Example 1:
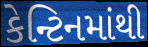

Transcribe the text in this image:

કેન્ટિનમાંથી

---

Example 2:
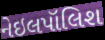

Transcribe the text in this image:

નેઇલપૉલિશ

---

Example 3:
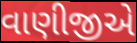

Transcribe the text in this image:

વાણીજીએ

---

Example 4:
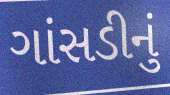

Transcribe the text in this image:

ગાંસડીનું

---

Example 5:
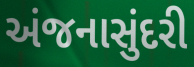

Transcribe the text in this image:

અંજનાસુંદરી